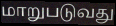
மாறுபடுவது